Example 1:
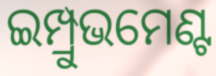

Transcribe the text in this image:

ଇମ୍ପ୍ରୁଭମେଣ୍ଟ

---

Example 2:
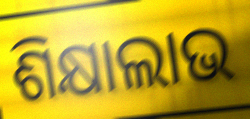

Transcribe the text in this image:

ଶିକ୍ଷାଲାଭ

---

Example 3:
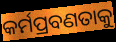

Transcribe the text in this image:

କର୍ମପ୍ରବଣତାକୁ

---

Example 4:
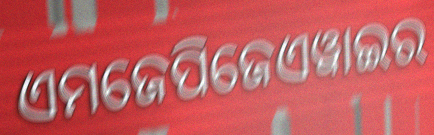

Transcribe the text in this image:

ଏମଜେପିଜେଏୱାଇର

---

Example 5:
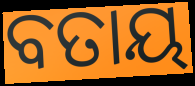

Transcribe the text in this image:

ବତାୟ